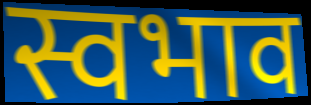
स्वभाव